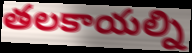
తలకాయల్ని